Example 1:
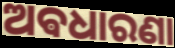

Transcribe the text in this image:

ଅଵଧାରଣା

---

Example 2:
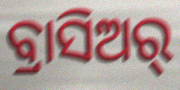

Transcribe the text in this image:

ବ୍ରାସିଅର୍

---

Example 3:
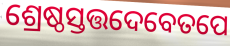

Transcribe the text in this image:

ଶ୍ରେଷ୍ଠସ୍ତତ୍ତଦେବେତପେ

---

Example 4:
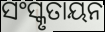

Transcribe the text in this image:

ସଂସ୍କୃତାୟନ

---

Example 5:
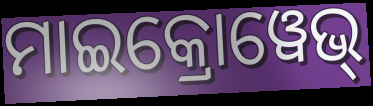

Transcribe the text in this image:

ମାଇକ୍ରୋୱେଭ୍